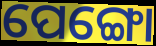
ପେଙ୍ଗୋ